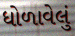
ધોળાવેલું